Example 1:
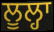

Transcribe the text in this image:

ਲੂਲ੍ਹਾ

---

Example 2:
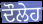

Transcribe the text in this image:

ਦੌਲੇਹ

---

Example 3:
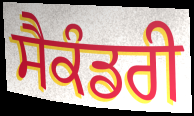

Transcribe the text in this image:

ਸੈਕੰਡਰੀ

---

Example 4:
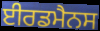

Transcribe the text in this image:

ਈਰਡਮੈਨਸ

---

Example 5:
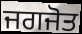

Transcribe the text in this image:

ਜਗਜੋਤ